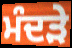
ਮੰਦੜੇ